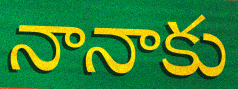
నానాకు